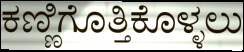
ಕಣ್ಣಿಗೊತ್ತಿಕೊಳ್ಳಲು